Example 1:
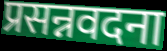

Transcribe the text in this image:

प्रसन्नवदना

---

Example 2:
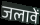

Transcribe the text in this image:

जलावें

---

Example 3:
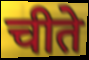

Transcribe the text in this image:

चीते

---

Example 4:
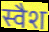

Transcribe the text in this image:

स्वैश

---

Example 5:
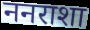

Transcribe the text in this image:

ननराशा